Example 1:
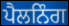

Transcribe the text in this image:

ਪੈਲਨਿੰਗ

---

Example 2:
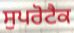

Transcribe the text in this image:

ਸੁਪਰੋਟੈਕ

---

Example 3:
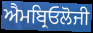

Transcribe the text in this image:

ਐਮਬ੍ਰਿਓਲੋਜੀ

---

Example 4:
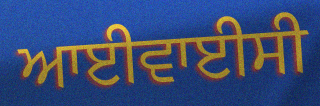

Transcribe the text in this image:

ਆਈਵਾਈਸੀ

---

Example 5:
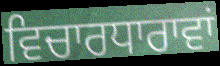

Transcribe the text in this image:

ਵਿਚਾਰਧਾਰਾਵਾਂ